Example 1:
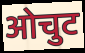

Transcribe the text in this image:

ओचुट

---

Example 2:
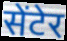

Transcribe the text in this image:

सेंटेर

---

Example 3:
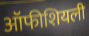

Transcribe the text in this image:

ऑफीशियली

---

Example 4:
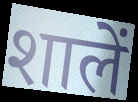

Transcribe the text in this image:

शालें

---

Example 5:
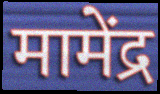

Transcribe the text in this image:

मामेंद्र